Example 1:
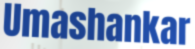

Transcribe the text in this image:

Umashankar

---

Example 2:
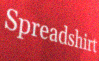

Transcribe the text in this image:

Spreadshirt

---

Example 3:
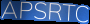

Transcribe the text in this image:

APSRTC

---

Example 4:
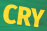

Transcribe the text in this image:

CRY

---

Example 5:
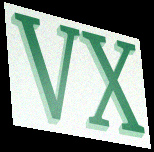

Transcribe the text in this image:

VX